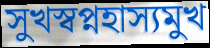
সুখস্বপ্নহাস্যমুখ